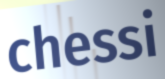
chessi